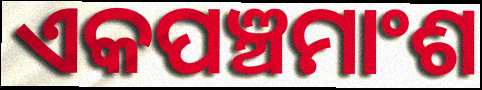
ଏକପଞ୍ଚମାଂଶ